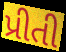
પ્રીતી